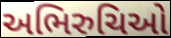
અભિરુચિઓ